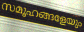
സമൂഹങ്ങളേയും